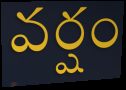
వర్షం